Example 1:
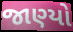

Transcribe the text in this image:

જાણ્યો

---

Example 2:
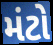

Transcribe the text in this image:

મંટો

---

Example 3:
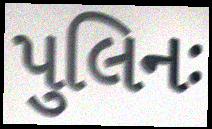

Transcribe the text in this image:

પુલિનઃ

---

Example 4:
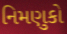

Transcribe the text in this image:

નિમણુકો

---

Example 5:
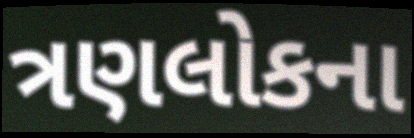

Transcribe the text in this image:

ત્રણલોકના